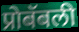
प्रोबॅबली